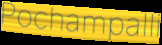
Pochampalli